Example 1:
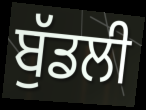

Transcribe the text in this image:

ਬੁੱਡਲੀ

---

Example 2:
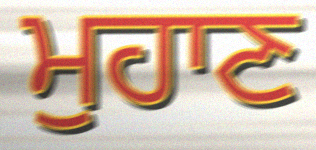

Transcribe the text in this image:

ਮੁਹਾਣ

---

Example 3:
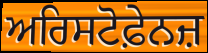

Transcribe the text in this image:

ਅਰਿਸਟੋਫ਼ੇਨਜ਼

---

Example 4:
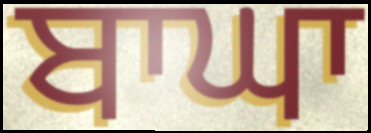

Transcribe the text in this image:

ਬਾਘਾ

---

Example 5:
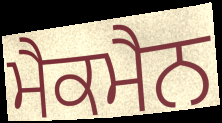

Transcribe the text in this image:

ਮੈਕਮੈਨ